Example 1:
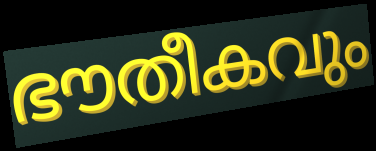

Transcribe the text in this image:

ഭൗതീകവും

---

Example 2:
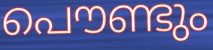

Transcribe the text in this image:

പൌണ്ടും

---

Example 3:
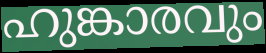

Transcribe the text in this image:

ഹുങ്കാരവും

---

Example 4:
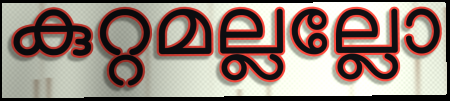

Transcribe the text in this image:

കുറ്റമല്ലല്ലോ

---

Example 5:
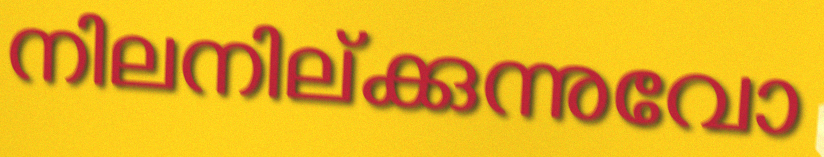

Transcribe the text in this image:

നിലനില്ക്കുന്നുവോ